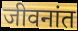
जीवनांत